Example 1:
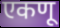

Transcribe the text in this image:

एकणू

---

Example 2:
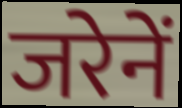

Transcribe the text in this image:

जरेनें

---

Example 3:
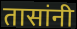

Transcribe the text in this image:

तासांनी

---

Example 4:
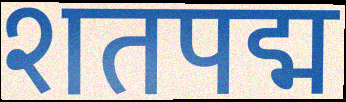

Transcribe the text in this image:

शतपद्म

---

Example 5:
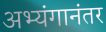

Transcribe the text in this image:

अभ्यंगानंतर